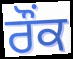
ਰੌਂਕ